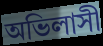
অভিলাসী